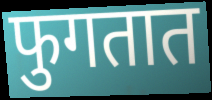
फुगतात